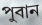
পুবান